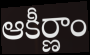
ఆకీర్ణాం